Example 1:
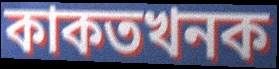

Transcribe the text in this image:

কাকতখনক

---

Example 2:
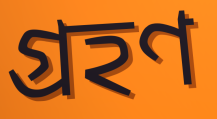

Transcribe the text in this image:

গ্ৰহণ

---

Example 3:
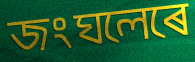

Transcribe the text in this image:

জংঘলেৰে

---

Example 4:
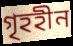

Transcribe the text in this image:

গৃহহীন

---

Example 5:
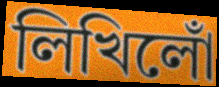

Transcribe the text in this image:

লিখিলোঁ